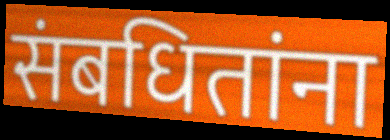
संबधितांना